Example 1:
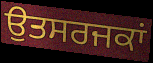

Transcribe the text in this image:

ਉਤਸਰਜਕਾਂ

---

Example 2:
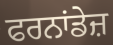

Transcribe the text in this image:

ਫਰਨਾਂਡੇਜ਼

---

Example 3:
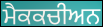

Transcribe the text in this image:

ਮੈਕਕਚੀਅਨ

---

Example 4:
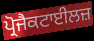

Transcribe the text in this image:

ਪ੍ਰੋਜੈਕਟਾਈਲਜ਼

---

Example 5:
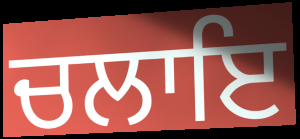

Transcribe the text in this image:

ਚਲਾਇ